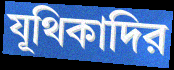
যূথিকাদির